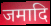
जमादि